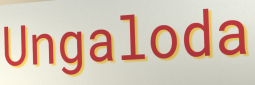
Ungaloda